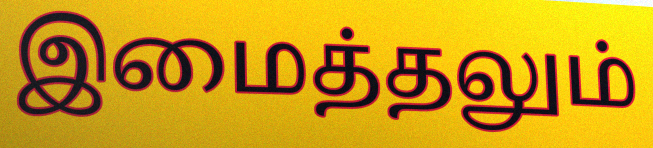
இமைத்தலும்